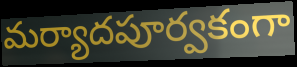
మర్యాదపూర్వకంగా